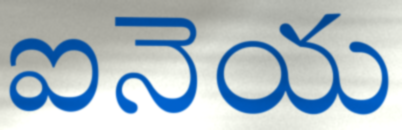
ఐనెయ